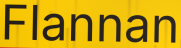
Flannan